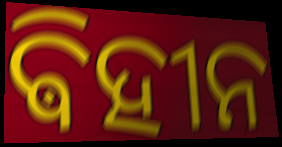
ଵିହୀନ